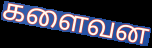
களைவன